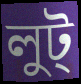
লুট্